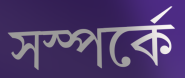
সস্পর্কে